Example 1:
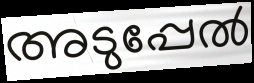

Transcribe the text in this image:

അടുപ്പേൽ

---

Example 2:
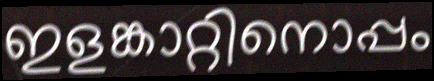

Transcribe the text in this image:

ഇളങ്കാറ്റിനൊപ്പം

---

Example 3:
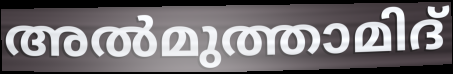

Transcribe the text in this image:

അൽമുത്താമിദ്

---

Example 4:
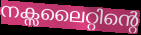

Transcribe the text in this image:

നക്സലൈറ്റിന്റെ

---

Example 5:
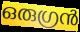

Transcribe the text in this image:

ഒരുഗ്രൻ